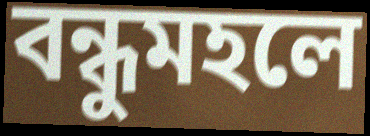
বন্ধুমহলে